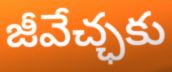
జీవేచ్ఛకు